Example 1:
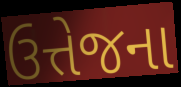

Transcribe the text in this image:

ઉત્તેજના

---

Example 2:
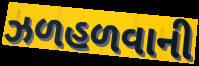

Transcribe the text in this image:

ઝળહળવાની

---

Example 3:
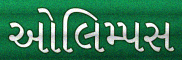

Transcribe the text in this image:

ઓલિમ્પસ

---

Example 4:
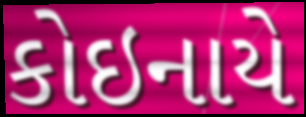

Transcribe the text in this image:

કોઇનાયે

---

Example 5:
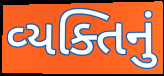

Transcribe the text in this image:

વ્‍યક્તિનું